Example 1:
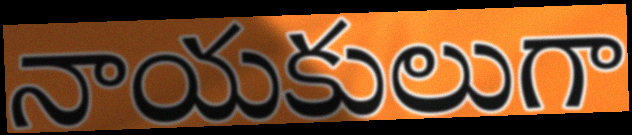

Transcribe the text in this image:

నాయకులుగా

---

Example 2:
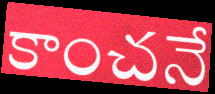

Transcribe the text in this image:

కాంచనే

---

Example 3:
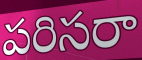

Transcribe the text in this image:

పరిసరా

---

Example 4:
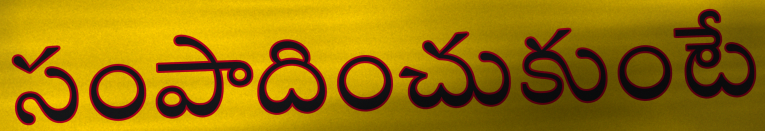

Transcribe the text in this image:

సంపాదించుకుంటే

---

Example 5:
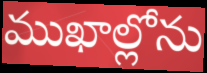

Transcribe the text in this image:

ముఖాల్లోను